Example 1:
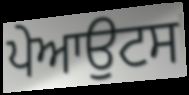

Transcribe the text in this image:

ਪੇਆਉਟਸ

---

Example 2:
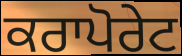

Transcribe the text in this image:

ਕਰਾਪੋਰੇਟ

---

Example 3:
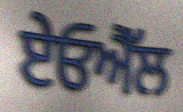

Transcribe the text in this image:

ਏਓਐੱਲ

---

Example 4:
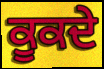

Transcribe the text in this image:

ਕੂਕਦੇ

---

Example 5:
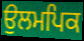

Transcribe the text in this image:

ਉਲਮਪਿਕ